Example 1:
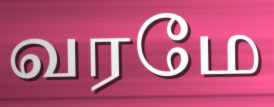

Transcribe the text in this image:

வரமே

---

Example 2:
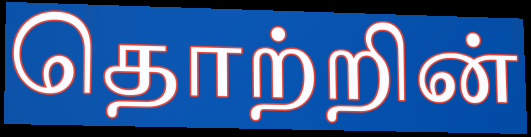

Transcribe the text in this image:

தொற்றின்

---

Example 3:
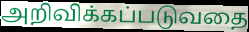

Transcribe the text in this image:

அறிவிக்கப்படுவதை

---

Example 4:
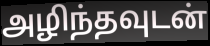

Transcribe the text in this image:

அழிந்தவுடன்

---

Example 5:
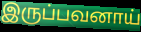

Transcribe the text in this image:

இருப்பவனாய்